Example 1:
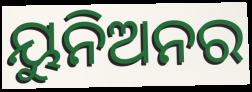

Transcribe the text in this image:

ୟୁନିଅନର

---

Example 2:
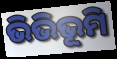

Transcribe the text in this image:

ଭିଭିଭୂମି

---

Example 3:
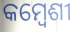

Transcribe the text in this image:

କମ୍ବେଶୀ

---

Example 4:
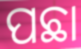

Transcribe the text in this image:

ପଛା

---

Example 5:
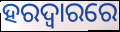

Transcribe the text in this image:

ହରଦ୍ୱାରରେ